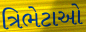
ત્રિભેટાઓ